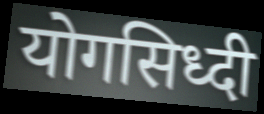
योगसिध्दी